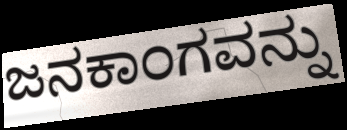
ಜನಕಾಂಗವನ್ನು